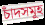
চাঁদসমূহ